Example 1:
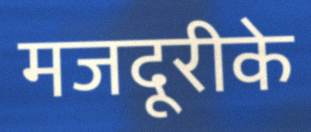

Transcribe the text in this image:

मजदूरीके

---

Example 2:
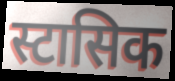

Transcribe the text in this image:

स्टासिक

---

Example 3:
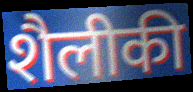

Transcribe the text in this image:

शैलीकी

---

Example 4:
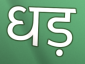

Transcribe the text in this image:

धड़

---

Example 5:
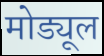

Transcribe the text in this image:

मोड्यूल